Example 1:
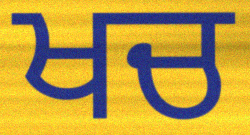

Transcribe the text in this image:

ਖਚ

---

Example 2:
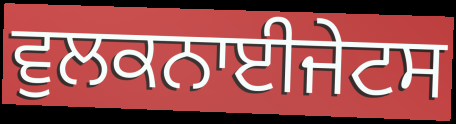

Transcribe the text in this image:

ਵੁਲਕਨਾਈਜੇਟਸ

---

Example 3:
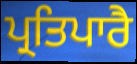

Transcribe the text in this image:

ਪ੍ਰਤਿਪਾਰੈ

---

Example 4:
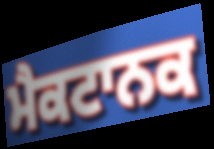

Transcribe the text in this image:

ਮੈਕਟਾਨਕ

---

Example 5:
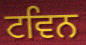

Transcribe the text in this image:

ਟਵਿਨ